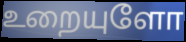
உறையுளோ